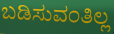
ಬಡಿಸುವಂತಿಲ್ಲ